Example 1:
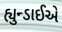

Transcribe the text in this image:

હ્યુન્ડાઈએ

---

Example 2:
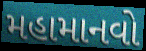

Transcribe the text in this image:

મહામાનવો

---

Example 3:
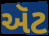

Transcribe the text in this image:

ઍટ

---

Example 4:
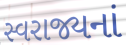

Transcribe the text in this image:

સ્વરાજ્યનાં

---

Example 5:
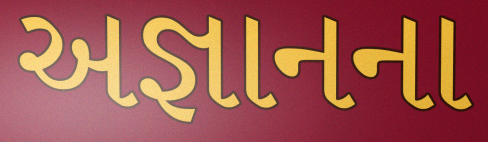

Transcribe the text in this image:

અજ્ઞાનના